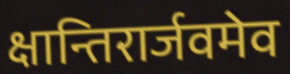
क्षान्तिरार्जवमेव